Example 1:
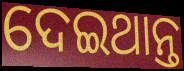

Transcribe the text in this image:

ଦେଇଥାନ୍ତ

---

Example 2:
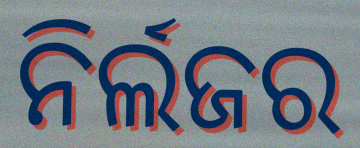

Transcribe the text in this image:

ନିର୍ଲଜର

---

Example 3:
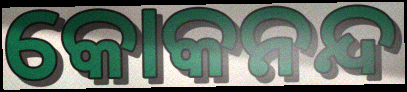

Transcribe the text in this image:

କୋକନନ୍ଦ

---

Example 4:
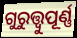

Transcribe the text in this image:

ଗୁରୁତ୍ତ୍ୱୁପୂର୍ଣ୍ଣ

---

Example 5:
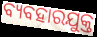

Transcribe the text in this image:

ବ୍ୟବହାରଯୁକ୍ତ